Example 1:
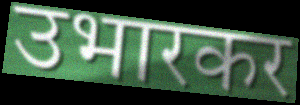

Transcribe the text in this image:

उभारकर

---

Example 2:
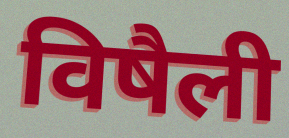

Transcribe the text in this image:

विषैली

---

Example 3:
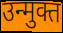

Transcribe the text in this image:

उन्मुक्त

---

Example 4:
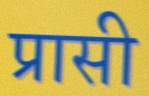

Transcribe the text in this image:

प्रासी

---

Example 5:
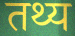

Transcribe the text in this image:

तथ्य